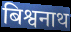
बिश्वनाथ